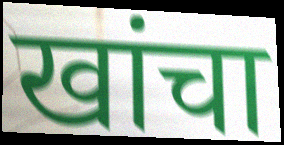
खांचा